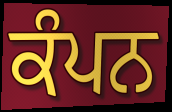
ਕੰਪਨ